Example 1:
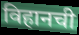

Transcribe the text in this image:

विहानची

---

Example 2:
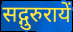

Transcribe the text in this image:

सद्गुरुरायें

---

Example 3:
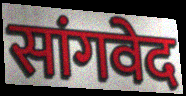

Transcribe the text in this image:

सांगवेद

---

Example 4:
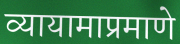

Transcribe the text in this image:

व्यायामाप्रमाणे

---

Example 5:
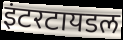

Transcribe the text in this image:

इंटरटायडल